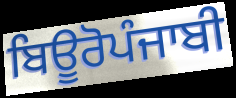
ਬਿਊਰੋਪੰਜਾਬੀ